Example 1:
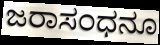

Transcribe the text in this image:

ಜರಾಸಂಧನೂ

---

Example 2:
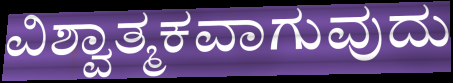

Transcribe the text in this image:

ವಿಶ್ವಾತ್ಮಕವಾಗುವುದು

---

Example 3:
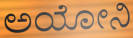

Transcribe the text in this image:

ಅಯೋನಿ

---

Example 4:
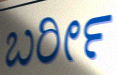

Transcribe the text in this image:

ಬರ್ರೀ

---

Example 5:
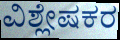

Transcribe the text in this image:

ವಿಶ್ಲೇಷಕರ